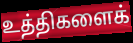
உத்திகளைக்